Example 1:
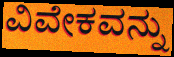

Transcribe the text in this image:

ವಿವೇಕವನ್ನು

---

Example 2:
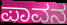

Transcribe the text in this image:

ಪಾವನ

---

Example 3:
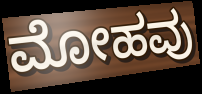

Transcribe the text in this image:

ಮೋಹವು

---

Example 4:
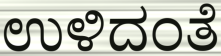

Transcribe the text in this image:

ಉಳಿದಂತೆ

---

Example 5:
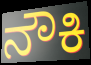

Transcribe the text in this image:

ನೌಕಿ